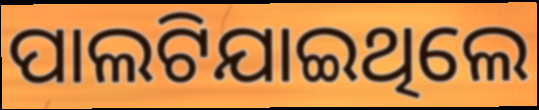
ପାଲଟିଯାଇଥିଲେ